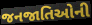
જનજાતિઓની